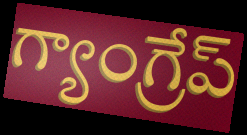
గ్యాంగ్రేప్